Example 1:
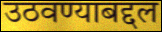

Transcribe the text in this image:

उठवण्याबद्दल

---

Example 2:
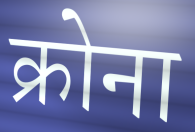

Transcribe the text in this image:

क्रोना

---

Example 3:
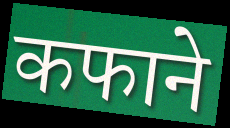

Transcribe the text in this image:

कफाने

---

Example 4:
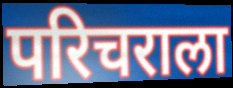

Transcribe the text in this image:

परिचराला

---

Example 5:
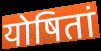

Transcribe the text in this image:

योषितां